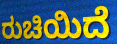
ರುಚಿಯಿದೆ